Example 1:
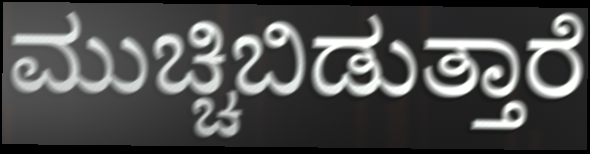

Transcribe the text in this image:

ಮುಚ್ಚಿಬಿಡುತ್ತಾರೆ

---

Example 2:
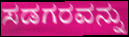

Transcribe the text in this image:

ಸಡಗರವನ್ನು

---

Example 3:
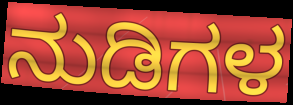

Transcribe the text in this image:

ನುಡಿಗಳ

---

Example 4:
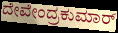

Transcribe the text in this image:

ದೇವೇಂದ್ರಕುಮಾರ್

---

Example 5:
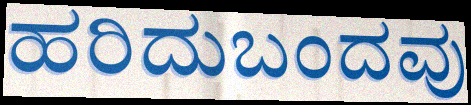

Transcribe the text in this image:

ಹರಿದುಬಂದವು